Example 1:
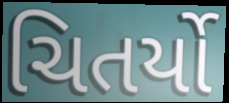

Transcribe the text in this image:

ચિતર્યો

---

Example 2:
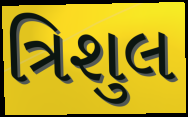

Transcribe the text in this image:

ત્રિશુલ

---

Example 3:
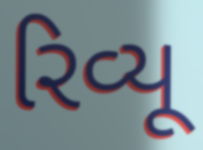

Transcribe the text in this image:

રિવ્યૂ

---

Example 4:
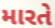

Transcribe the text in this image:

મારતે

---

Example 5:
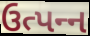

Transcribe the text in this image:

ઉત્પન્‍ન